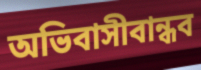
অভিবাসীবান্ধব